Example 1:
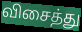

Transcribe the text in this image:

விசைத்து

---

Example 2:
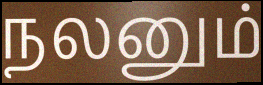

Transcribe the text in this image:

நலனும்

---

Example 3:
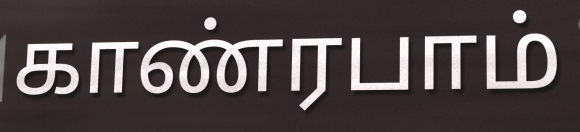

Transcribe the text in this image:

காண்ரபாம்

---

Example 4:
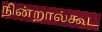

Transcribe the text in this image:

நின்றால்கூட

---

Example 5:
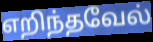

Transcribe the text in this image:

எறிந்தவேல்